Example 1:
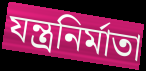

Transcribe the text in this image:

যন্ত্রনির্মাতা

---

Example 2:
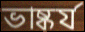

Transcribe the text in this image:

ভাষ্কর্য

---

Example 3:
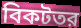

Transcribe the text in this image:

বিকটতর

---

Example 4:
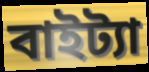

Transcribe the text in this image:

বাইট্যা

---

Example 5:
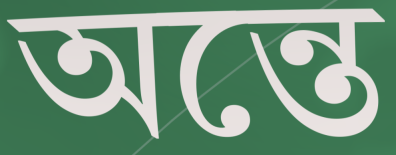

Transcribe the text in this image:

অন্তে